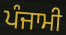
ਪੰਜਾਮੀ